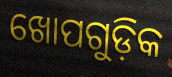
ଖୋପଗୁଡ଼ିକ